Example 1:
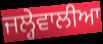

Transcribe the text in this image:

ਜਲ੍ਹੇਵਾਲੀਆ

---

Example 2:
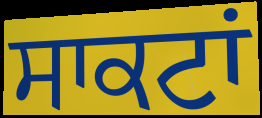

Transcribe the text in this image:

ਸਾਕਟਾਂ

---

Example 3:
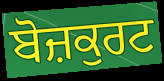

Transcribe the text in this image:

ਬੋਜ਼ਕੁਰਟ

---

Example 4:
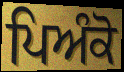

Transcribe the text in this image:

ਪਿਅੰਕੋ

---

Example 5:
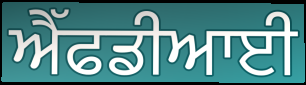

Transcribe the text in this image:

ਐੱਫਡੀਆਈ